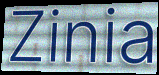
Zinia